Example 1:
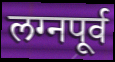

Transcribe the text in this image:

लग्नपूर्व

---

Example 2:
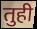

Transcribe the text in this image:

तुही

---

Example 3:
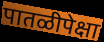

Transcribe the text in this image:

पातळीपेक्षा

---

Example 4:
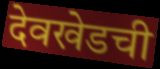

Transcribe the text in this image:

देवखेडची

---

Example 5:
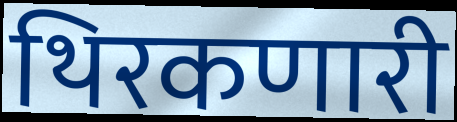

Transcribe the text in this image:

थिरकणारी